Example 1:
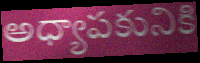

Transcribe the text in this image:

అధ్యాపకునికి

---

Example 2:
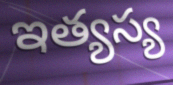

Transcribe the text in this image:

ఇత్యస్య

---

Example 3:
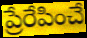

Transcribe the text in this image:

ప్రేరేపించే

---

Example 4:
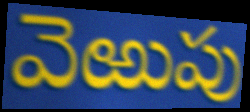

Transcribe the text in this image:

వెఱుపు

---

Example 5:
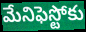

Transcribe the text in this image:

మేనిఫెస్టోకు